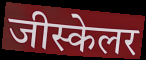
जीस्केलर